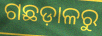
ଗଛଡ଼ାଳରୁ